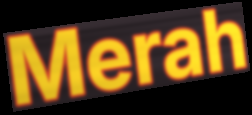
Merah